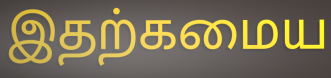
இதற்கமைய